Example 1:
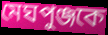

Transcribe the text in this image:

মেঘপুঞ্জকে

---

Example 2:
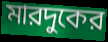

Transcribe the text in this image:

মারদুকের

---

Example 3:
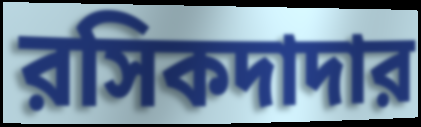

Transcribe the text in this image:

রসিকদাদার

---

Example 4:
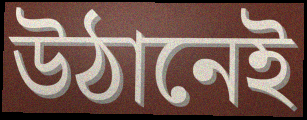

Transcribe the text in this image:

উঠানেই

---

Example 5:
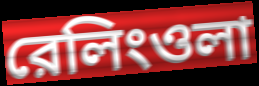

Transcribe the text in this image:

রেলিংওলা